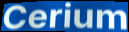
Cerium